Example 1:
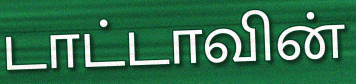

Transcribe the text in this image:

டாட்டாவின்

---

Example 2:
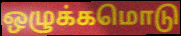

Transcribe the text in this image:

ஒழுக்கமொடு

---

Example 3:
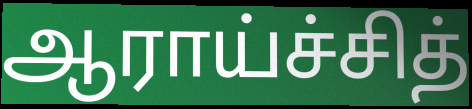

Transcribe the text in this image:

ஆராய்ச்சித்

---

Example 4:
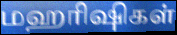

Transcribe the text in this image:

மஹரிஷிகள்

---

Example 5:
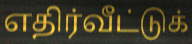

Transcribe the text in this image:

எதிர்வீட்டுக்